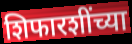
शिफारशींच्या